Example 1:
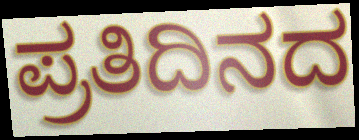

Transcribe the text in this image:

ಪ್ರತಿದಿನದ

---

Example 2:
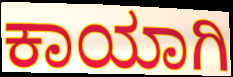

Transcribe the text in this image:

ಕಾಯಾಗಿ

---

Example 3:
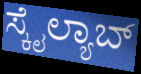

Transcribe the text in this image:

ಸ್ಕೈಲ್ಯಾಬ್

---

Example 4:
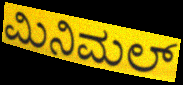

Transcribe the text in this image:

ಮಿನಿಮಲ್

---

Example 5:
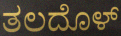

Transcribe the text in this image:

ತಲದೊಳ್